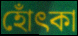
হোঁৎকা